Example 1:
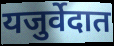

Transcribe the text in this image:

यजुर्वेदात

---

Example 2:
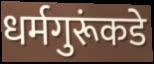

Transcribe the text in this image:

धर्मगुरूंकडे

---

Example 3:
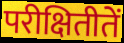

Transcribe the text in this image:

परीक्षितीतें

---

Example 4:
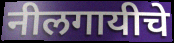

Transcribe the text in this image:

नीलगायीचे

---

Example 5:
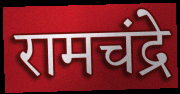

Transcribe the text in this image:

रामचंद्रे